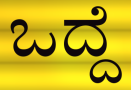
ಒದ್ದೆ